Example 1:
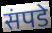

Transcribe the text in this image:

संपडे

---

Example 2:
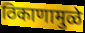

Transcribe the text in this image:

ठिकाणामुळे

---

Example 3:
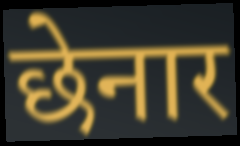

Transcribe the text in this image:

छेनार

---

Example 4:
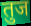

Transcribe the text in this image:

तुज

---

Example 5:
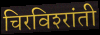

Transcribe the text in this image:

चिरविश्रांती